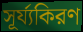
সূর্য্যকিরণ